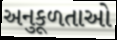
અનુકૂળતાઓ